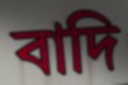
বাদি